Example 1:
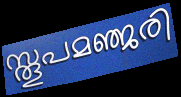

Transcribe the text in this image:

സ്തൂപമഞ്ജരി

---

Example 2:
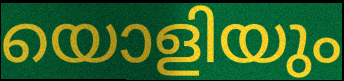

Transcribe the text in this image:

യൊളിയും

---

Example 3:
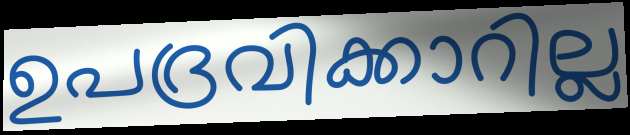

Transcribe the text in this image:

ഉപദ്രവിക്കാറില്ല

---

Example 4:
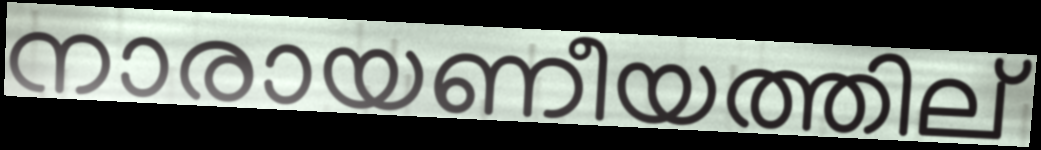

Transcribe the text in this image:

നാരായണീയത്തില്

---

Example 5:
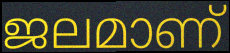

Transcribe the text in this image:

ജലമാണ്